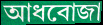
আধবোজা